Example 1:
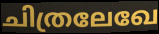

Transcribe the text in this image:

ചിത്രലേഖേ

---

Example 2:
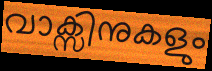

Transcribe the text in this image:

വാക്സിനുകളും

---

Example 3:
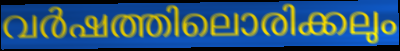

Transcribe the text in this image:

വർഷത്തിലൊരിക്കലും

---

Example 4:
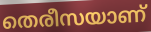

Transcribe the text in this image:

തെരീസയാണ്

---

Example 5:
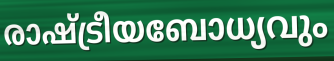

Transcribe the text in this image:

രാഷ്ട്രീയബോധ്യവും